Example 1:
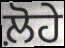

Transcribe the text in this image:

ਲ਼ੋਹੇ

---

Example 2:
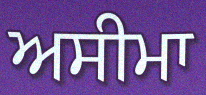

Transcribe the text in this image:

ਅਸੀਮਾ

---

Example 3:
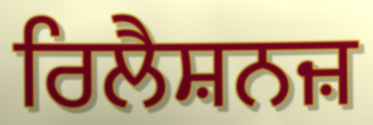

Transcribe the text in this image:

ਰਿਲੈਸ਼ਨਜ਼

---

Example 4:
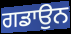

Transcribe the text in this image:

ਗਡਾਉਨ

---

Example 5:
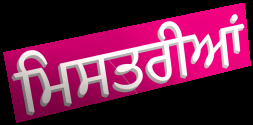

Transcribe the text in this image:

ਮਿਸਤਰੀਆਂ